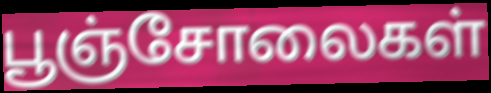
பூஞ்சோலைகள்